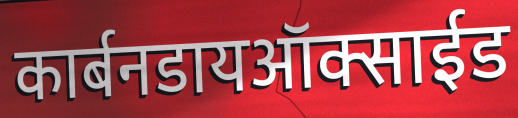
कार्बनडायऑक्साईड